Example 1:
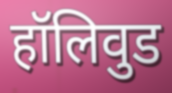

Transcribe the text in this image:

हॉलिवुड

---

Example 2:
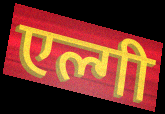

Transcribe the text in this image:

एल्गी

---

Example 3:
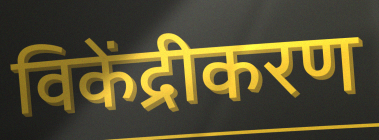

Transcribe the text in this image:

विकेंद्रीकरण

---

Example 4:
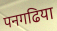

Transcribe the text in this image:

पनगढिया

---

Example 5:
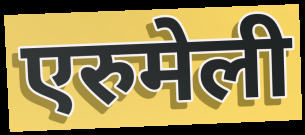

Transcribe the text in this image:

एरुमेली